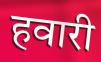
हवारी